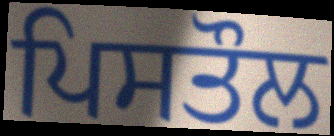
ਪਿਸਤੌਲ